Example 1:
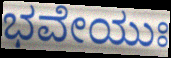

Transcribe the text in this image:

ಭವೇಯುಃ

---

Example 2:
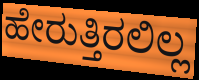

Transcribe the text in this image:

ಹೇರುತ್ತಿರಲಿಲ್ಲ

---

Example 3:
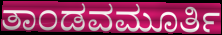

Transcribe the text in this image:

ತಾಂಡವಮೂರ್ತಿ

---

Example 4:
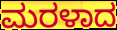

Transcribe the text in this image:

ಮರಳಾದ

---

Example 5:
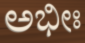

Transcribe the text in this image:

ಅಭೀಃ